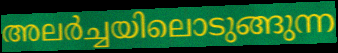
അലർച്ചയിലൊടുങ്ങുന്ന